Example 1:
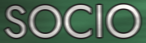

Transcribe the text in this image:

SOCIO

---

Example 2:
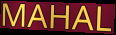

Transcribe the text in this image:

MAHAL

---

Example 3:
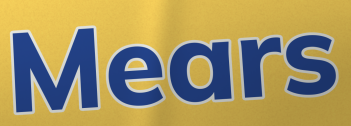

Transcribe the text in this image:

Mears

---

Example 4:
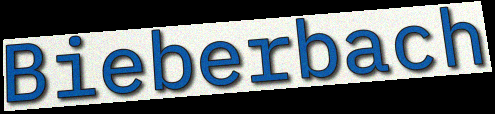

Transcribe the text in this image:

Bieberbach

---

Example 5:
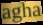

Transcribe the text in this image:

agha